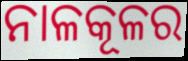
ନାଳକୂଳର